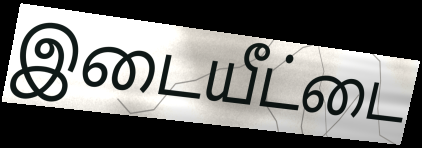
இடையீட்டை